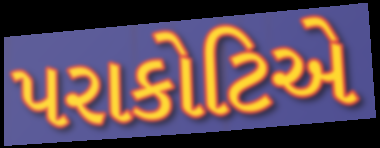
પરાકોટિએ